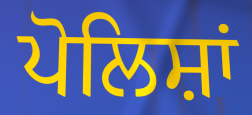
ਪੋਲਿਸ਼ਾਂ